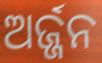
ଅର୍ଜ୍ଜନ